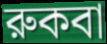
রুকবা